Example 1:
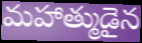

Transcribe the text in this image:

మహాత్ముడైన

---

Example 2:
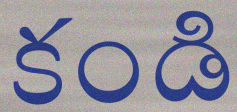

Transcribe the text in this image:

కండి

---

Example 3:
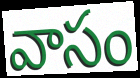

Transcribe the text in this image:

వాసం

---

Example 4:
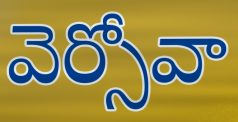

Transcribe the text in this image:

వెర్సోవా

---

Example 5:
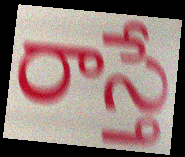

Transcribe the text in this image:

రాస్తే